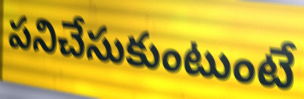
పనిచేసుకుంటుంటే